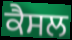
ਕੈਸਲ